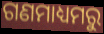
ଗଣମାଧ୍ୟମରୁ